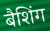
बैशिंग